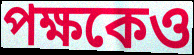
পক্ষকেও